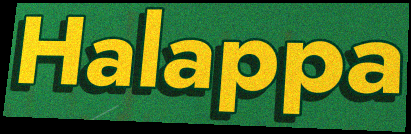
Halappa